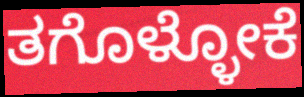
ತಗೊಳ್ಳೋಕೆ